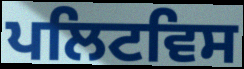
ਪਲਿਟਵਿਸ